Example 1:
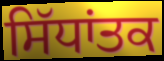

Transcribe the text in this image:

ਸਿੱਧਾਂਤਕ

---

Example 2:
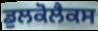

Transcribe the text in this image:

ਡੁਲਕੋਲੈਕਸ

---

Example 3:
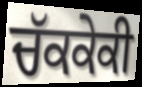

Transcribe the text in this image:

ਚੱਕਕੇਕੀ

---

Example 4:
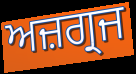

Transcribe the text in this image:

ਅਜ਼ਗ੍ਰਜ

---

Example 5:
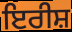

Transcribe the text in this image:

ਇਰੀਸ਼